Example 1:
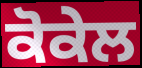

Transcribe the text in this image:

ਕੋਕੇਲ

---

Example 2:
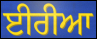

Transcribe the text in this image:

ਈਰੀਆ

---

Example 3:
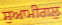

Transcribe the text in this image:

ਸੁਆਮੀਗਲੁ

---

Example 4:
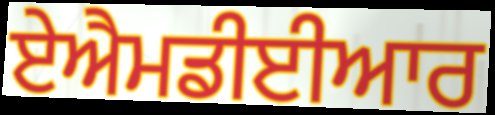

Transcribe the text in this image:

ਏਐਮਡੀਈਆਰ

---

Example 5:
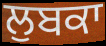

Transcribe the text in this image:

ਲੁਬਕਾ